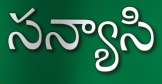
సన్యాసి